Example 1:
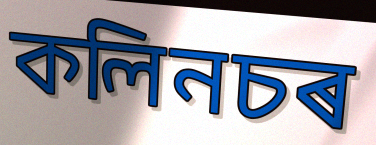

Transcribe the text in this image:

কলিনচৰ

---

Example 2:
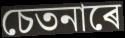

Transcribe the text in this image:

চেতনাৰে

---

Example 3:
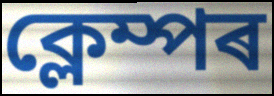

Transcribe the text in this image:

ক্লেম্পৰ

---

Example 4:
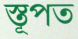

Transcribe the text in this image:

স্তূপত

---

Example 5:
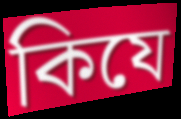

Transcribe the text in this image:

কিযে